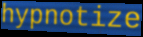
hypnotize